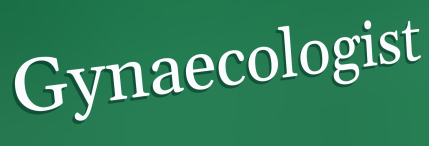
Gynaecologist